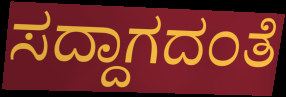
ಸದ್ದಾಗದಂತೆ